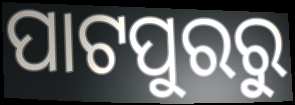
ପାଟପୁରରୁ